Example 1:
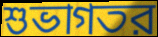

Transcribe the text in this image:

শুভাগতর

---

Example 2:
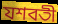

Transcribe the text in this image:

যশবতী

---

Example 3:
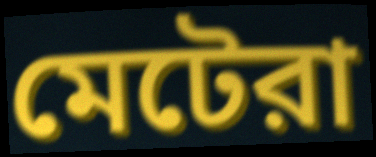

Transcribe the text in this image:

মেটেরা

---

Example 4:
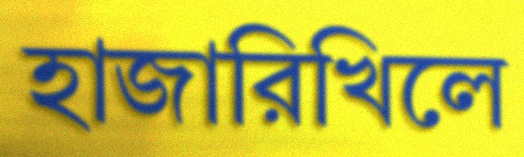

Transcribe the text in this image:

হাজারিখিলে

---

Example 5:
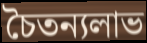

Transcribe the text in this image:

চৈতন্যলাভ